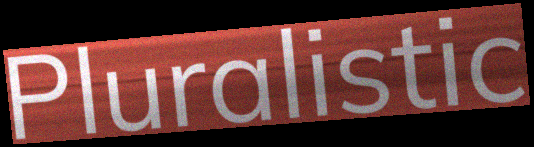
Pluralistic